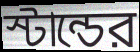
স্টান্ডের